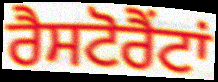
ਰੈਸਟੋਰੈਂਟਾਂ